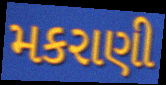
મકરાણી